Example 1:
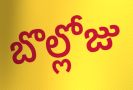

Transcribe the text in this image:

బొల్లోజు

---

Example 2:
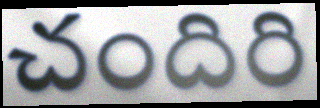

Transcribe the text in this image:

చందిరి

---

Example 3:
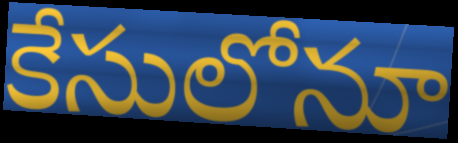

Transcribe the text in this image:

కేసులోనూ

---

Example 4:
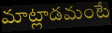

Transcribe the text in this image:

మాట్లాడమంటే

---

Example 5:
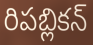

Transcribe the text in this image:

రిపబ్లికన్